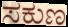
ಸಕುಣ